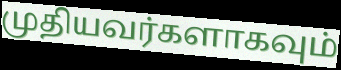
முதியவர்களாகவும்